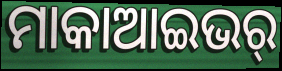
ମାକାଆଇଭର୍